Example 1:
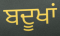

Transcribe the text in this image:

ਬਦੂਖਾਂ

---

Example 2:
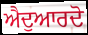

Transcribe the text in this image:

ਐਦੁਆਰਦੋ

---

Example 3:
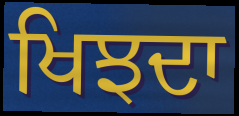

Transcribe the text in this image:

ਖਿਝਦਾ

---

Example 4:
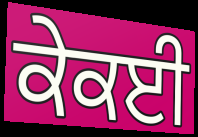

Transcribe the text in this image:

ਕੇਕਈ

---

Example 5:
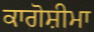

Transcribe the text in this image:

ਕਾਗੋਸ਼ੀਮਾ